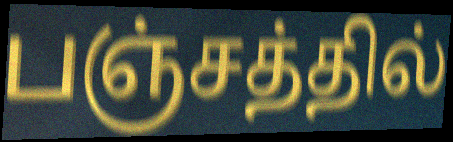
பஞ்சத்தில்